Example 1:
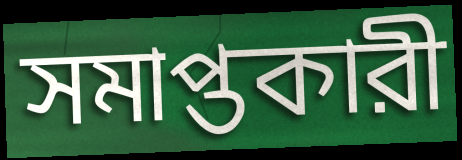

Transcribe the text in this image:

সমাপ্তকারী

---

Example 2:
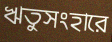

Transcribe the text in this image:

ঋতুসংহারে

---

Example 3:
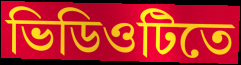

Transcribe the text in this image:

ভিডিওটিতে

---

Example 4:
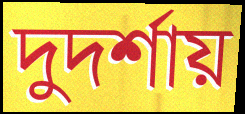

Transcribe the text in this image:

দুদর্শায়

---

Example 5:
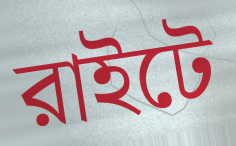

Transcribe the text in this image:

রাইটে